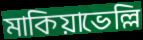
মাকিয়াভেল্লি